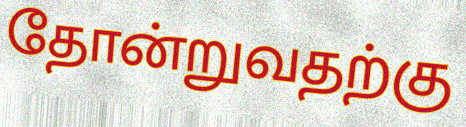
தோன்றுவதற்கு